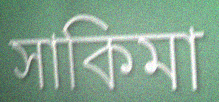
সাকিমা